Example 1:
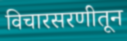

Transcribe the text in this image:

विचारसरणीतून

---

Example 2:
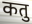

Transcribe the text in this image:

कतु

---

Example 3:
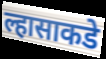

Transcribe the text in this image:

ल्हासाकडे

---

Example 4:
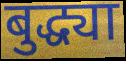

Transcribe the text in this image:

बुद्ध्या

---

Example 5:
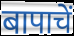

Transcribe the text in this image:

बापाचें